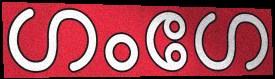
ഗംഗേ